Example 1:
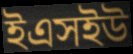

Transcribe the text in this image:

ইএসইউ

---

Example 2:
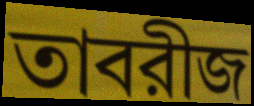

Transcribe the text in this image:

তাবরীজ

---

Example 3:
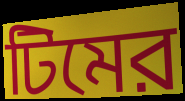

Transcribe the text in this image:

টিমের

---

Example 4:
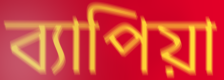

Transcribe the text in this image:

ব্যাপিয়া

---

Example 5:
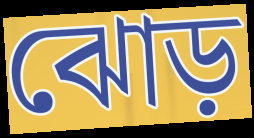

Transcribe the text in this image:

ঝোড়